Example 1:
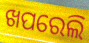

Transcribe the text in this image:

ଖପରେଲି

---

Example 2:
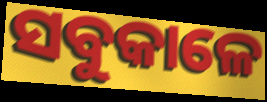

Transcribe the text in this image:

ସବୁକାଳେ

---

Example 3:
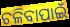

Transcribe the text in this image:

ଚଳିବାପାଇଁ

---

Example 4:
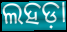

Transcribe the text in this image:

ଲହଡ଼ା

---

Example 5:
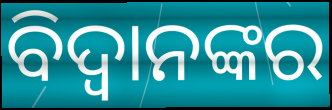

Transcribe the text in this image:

ବିଦ୍ୱାନଙ୍କର